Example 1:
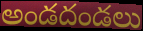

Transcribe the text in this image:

అండదండలు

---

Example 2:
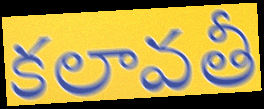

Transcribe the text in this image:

కలావతీ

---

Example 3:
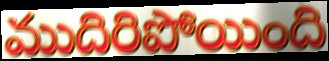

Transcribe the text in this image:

ముదిరిపోయింది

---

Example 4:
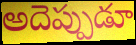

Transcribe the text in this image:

అదెప్పుడూ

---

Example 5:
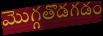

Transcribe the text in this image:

మొగ్గతొడగడం